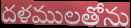
దళములతోను